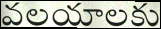
వలయాలకు